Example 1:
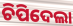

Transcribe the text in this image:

ଚିପିଦେଲା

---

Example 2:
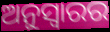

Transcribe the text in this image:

ଅନୁସ୍ଵାରର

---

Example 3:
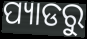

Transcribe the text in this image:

ପ୍ୟାଡରୁ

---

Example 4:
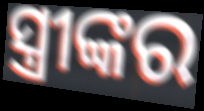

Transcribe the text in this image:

ସ୍ତ୍ରୀଙ୍କର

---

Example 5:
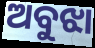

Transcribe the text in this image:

ଅବୁଝା